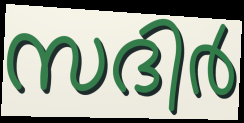
സദിർ